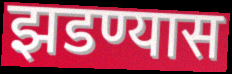
झडण्यास